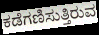
ಕಡೆಗಣಿಸುತ್ತಿರುವ